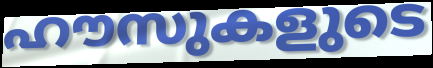
ഹൗസുകളുടെ